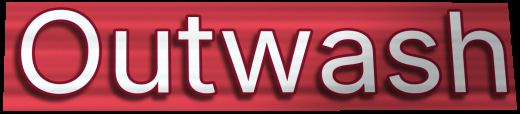
Outwash